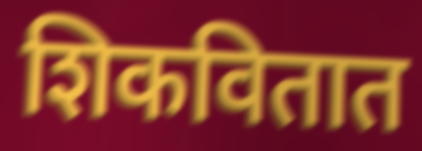
शिकवितात